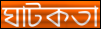
ঘাটকতা